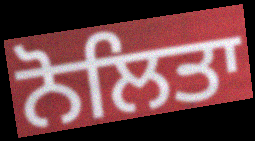
ਨੋਲਿਤਾ